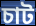
চাট